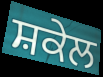
ਸ਼ਕੇਲ